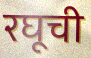
रघूची